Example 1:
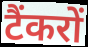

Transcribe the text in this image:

टैंकरों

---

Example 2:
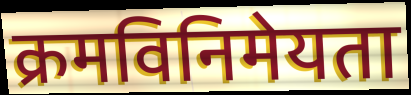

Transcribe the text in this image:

क्रमविनिमेयता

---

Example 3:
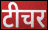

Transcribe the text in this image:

टीचर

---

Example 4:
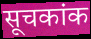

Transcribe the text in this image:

सूचकांक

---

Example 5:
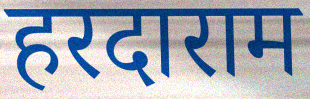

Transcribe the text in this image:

हरदाराम